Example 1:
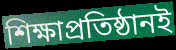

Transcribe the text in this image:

শিক্ষাপ্রতিষ্ঠানই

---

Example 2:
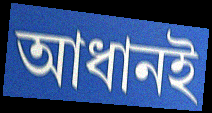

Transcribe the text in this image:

আধানই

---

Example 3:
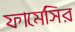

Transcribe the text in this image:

ফার্মেসির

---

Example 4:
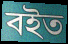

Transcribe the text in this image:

বইত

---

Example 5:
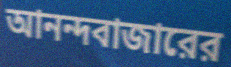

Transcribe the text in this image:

আনন্দবাজারের